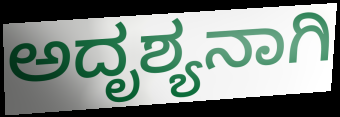
ಅದೃಶ್ಯನಾಗಿ